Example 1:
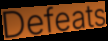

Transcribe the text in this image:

Defeats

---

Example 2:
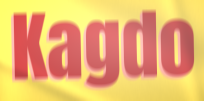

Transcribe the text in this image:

Kagdo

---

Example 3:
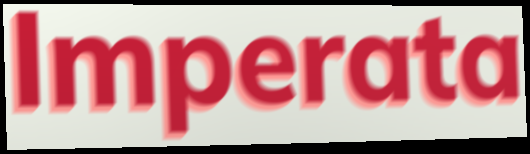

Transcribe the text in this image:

Imperata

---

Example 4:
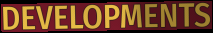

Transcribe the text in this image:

DEVELOPMENTS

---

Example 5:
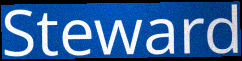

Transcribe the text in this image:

Steward